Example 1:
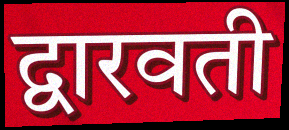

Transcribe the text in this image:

द्वारवती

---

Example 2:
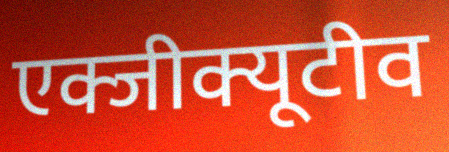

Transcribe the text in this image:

एक्जीक्यूटीव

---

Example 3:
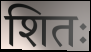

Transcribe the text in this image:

शितः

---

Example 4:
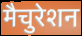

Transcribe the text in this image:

मैचुरेशन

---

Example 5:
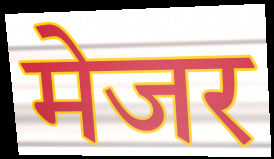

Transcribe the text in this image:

मेजर